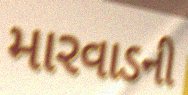
મારવાડની